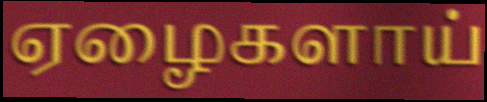
ஏழைகளாய்